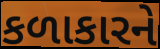
કળાકારને